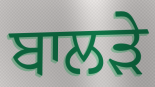
ਬਾਲੜੇ